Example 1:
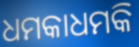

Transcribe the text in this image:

ଧମକାଧମକି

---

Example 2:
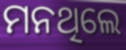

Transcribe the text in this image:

ମନଥିଲେ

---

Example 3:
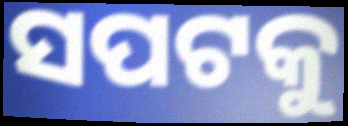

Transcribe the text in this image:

ସପଟକୁ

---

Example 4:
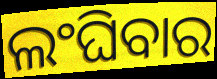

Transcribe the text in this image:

ଲଂଘିବାର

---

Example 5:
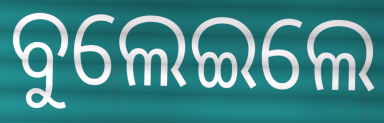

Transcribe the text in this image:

ବୁଲେଇଲେ